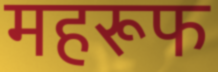
महरूफ